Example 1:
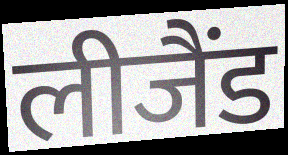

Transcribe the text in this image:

लीजैंड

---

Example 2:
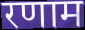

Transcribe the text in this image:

रणाम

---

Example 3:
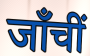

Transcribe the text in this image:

जाँचीं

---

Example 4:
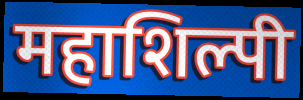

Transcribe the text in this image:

महाशिल्पी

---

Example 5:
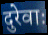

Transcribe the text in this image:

दुरेवाः